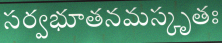
సర్వభూతనమస్కృతః